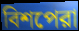
বিশপেরা